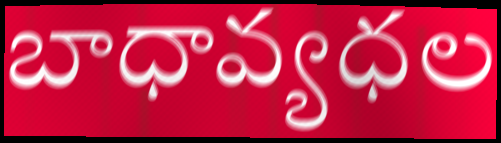
బాధావ్యధల